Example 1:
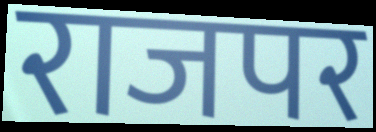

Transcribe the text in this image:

राजपर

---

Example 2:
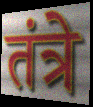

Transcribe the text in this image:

तंत्रे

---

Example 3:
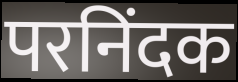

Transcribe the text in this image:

परनिंदक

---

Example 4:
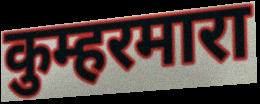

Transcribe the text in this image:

कुम्हरमारा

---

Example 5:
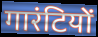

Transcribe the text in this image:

गारंटियों